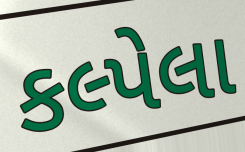
કલ્પેલા